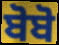
ਬੋਬੋ